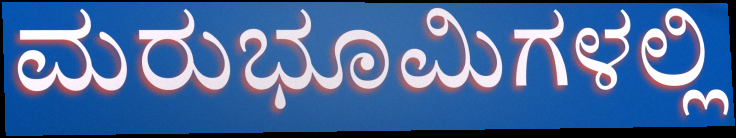
ಮರುಭೂಮಿಗಳಲ್ಲಿ